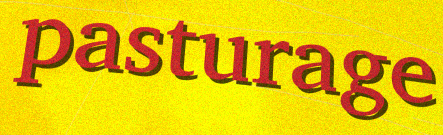
pasturage